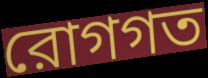
রোগগত